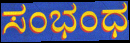
ಸಂಭಂಧ